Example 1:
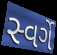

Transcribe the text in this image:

સ્વર્ગે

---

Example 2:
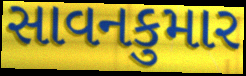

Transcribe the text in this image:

સાવનકુમાર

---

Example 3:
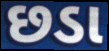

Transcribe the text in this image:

છડા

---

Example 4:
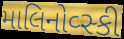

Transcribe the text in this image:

માલિનોવ્સ્કી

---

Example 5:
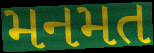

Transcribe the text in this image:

મનમત